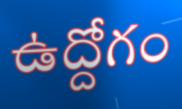
ఉద్దోగం